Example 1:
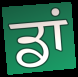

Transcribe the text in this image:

ਡਾਂ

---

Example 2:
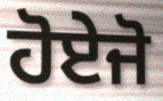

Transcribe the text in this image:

ਹੋਏਜੋ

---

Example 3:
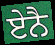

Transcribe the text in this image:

ਏਨੈ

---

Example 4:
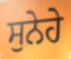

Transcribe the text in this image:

ਸੁਨੇਹੇ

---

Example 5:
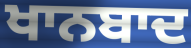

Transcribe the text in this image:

ਖਾਨਬਾਦ